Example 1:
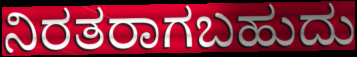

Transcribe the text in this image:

ನಿರತರಾಗಬಹುದು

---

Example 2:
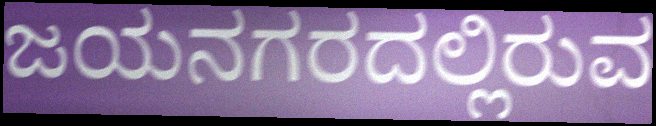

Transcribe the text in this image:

ಜಯನಗರದಲ್ಲಿರುವ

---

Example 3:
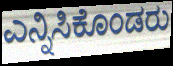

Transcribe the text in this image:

ಎನ್ನಿಸಿಕೊಂಡರು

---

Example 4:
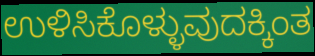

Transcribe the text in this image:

ಉಳಿಸಿಕೊಳ್ಳುವುದಕ್ಕಿಂತ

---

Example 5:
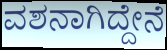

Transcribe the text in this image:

ವಶನಾಗಿದ್ದೇನೆ